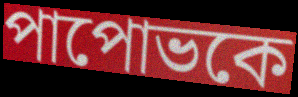
পাপোভকে